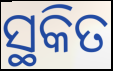
ସ୍ଥକିତ